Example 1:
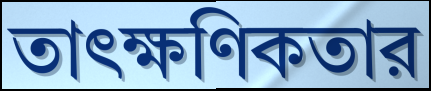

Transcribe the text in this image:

তাৎক্ষণিকতার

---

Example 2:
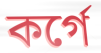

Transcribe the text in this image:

কর্গে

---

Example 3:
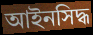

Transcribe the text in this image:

আইনসিদ্ধ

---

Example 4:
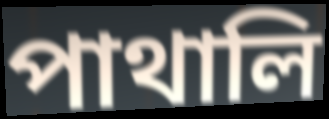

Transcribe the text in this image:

পাথালি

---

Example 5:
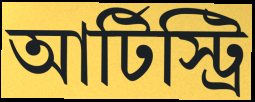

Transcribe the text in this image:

আর্টিস্ট্রি